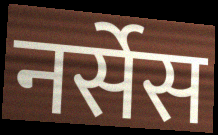
नर्सेस